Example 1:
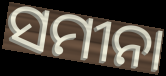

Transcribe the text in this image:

ସମୀନା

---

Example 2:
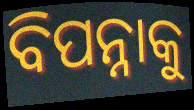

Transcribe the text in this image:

ବିପନ୍ନାକୁ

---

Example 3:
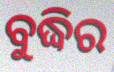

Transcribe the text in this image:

ବୁଦ୍ଧିର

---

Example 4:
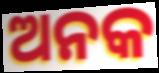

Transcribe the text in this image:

ଅନକ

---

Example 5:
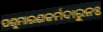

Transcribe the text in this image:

ପଶୁମାରଣକର୍ମଦାରୁନଃ